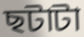
ছটাটা